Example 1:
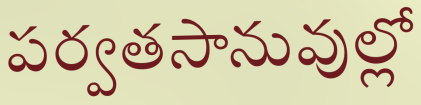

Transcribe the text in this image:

పర్వతసానువుల్లో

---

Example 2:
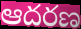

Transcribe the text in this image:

ఆదరణ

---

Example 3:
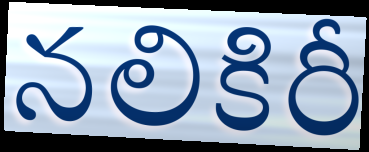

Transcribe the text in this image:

నలికిరీ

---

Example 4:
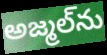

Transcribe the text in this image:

అజ్మల్‌ను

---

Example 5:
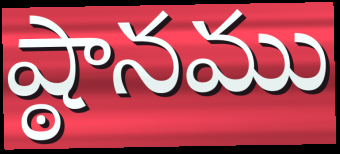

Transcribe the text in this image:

ష్ఠానము